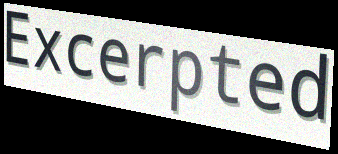
Excerpted